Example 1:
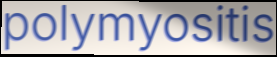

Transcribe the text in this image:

polymyositis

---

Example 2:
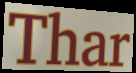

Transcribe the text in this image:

Thar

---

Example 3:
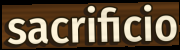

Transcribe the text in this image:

sacrificio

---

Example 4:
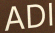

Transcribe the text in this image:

ADI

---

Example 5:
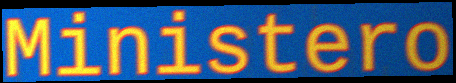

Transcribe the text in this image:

Ministero